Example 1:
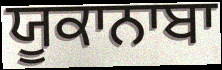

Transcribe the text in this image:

ਯੂਕਾਨਾਬਾ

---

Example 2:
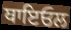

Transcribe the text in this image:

ਥਾਇਓਲ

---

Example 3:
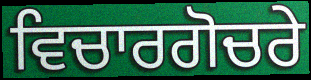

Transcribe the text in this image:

ਵਿਚਾਰਗੋਚਰੇ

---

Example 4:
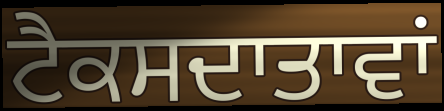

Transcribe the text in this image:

ਟੈਕਸਦਾਤਾਵਾਂ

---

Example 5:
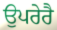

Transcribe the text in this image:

ਉਪਰੇਰੈ